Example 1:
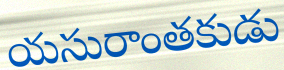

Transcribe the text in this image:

యసురాంతకుడు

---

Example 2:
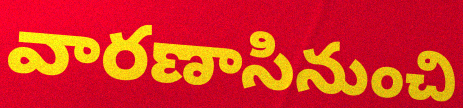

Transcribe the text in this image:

వారణాసినుంచి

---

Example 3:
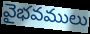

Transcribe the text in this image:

వైభవములు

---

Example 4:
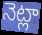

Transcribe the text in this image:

నెట్లా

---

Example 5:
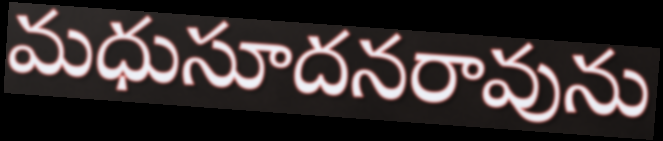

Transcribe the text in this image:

మధుసూదనరావును